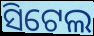
ସିଟେଲ